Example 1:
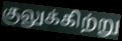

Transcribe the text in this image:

குலுக்கிற்று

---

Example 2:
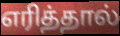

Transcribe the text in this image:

எரித்தால்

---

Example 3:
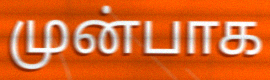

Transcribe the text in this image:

முன்பாக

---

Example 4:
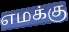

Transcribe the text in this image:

எமக்கு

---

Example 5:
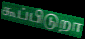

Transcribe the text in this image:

கூப்பிடுறா